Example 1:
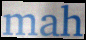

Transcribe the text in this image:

mah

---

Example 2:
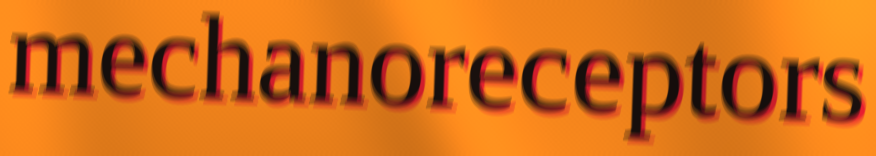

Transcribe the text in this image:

mechanoreceptors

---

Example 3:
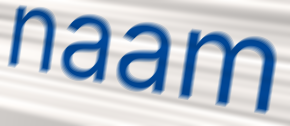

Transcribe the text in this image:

naam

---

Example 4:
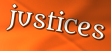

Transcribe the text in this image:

justices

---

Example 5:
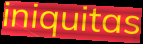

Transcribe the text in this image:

iniquitas